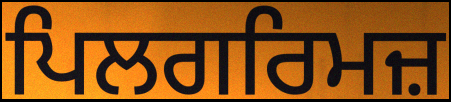
ਪਿਲਗਰਿਮਜ਼